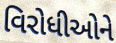
વિરોધીઓને